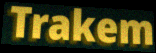
Trakem